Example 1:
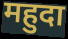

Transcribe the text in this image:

महुदा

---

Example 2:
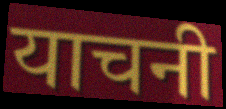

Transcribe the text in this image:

याचनी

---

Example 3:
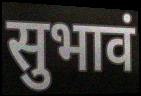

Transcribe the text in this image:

सुभावं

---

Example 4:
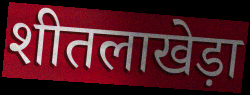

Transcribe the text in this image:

शीतलाखेड़ा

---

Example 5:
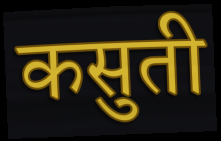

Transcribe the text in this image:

कसुती